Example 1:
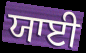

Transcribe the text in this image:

ਯਾਈ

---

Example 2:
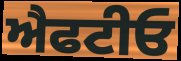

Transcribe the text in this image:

ਐਫਟੀਓ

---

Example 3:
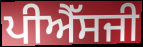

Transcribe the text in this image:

ਪੀਐੱਸਜੀ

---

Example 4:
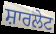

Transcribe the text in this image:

ਸ਼ਾਰਲੇਟ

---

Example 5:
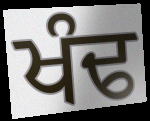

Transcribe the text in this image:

ਖੰਢ